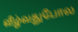
வீழ்வதுபோல